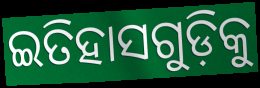
ଇତିହାସଗୁଡ଼ିକୁ